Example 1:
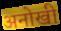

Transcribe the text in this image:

अनोखी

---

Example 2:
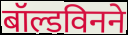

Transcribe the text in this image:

बॉल्डविनने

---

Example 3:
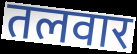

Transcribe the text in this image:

तलवार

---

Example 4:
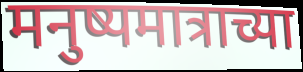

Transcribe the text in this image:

मनुष्यमात्राच्या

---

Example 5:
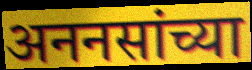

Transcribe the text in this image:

अननसांच्या